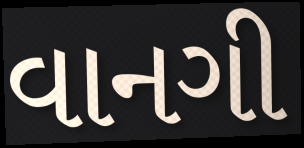
વાનગી